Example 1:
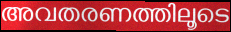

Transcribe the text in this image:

അവതരണത്തിലൂടെ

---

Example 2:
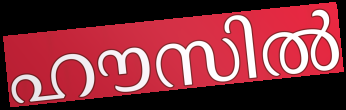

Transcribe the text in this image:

ഹൗസിൽ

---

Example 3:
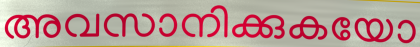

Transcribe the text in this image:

അവസാനിക്കുകയോ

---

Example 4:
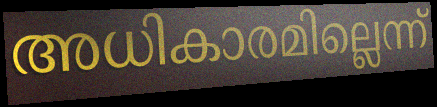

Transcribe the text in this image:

അധികാരമില്ലെന്ന്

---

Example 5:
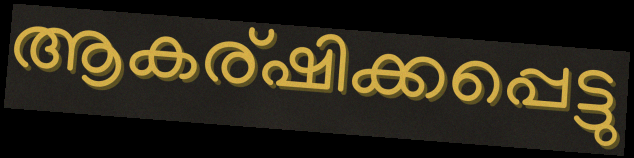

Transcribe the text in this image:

ആകര്ഷിക്കപ്പെട്ടു